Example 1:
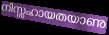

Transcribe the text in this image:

നിസ്സഹായതയാണു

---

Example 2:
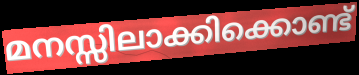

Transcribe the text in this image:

മനസ്സിലാക്കിക്കൊണ്ട്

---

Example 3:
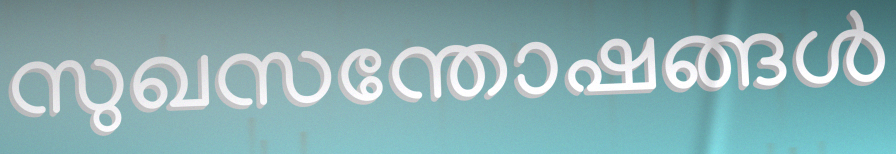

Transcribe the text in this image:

സുഖസന്തോഷങ്ങൾ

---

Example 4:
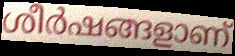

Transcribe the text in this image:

ശീർഷങ്ങളാണ്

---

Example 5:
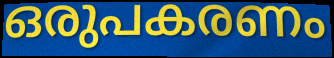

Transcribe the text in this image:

ഒരുപകരണം